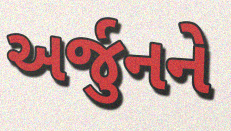
અર્જુનને